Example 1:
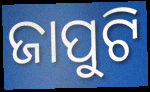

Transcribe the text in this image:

ଜାପୁଟି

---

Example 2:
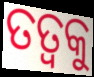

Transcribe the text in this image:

ତତ୍ୱକୁ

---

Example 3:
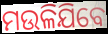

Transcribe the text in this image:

ମଉଳିଯିବେ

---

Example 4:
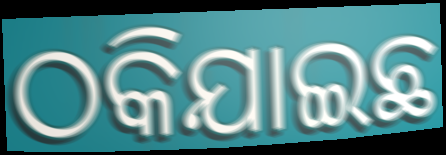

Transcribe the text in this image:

ଠକିଯାଇଛ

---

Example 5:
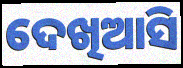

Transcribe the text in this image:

ଦେଖିଆସି